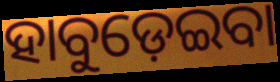
ହାବୁଡ଼େଇବା